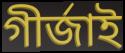
গীৰ্জাই